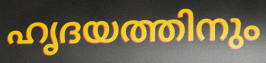
ഹൃദയത്തിനും